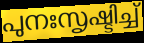
പുനഃസൃഷ്ടിച്ച്